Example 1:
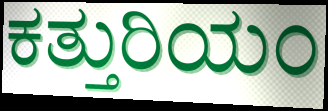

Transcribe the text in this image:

ಕತ್ತುರಿಯಂ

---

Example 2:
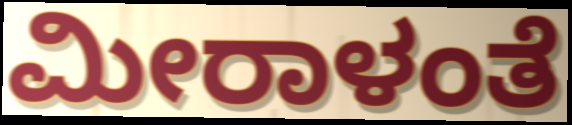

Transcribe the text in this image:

ಮೀರಾಳಂತೆ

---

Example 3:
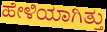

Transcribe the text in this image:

ಹೇಳಿಯಾಗಿತ್ತು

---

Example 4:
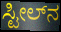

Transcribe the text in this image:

ಸ್ಟೀಲ್‌ನ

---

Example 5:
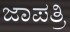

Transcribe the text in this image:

ಜಾಪತ್ರಿ